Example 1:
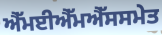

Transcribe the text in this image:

ਐੱਮਈਐੱਮਐੱਸਸਮੇਤ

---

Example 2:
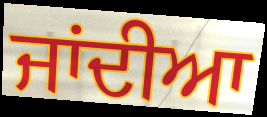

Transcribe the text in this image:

ਜਾਂਦੀਆ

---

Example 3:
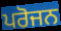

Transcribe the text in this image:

ਪਰੋਜਨ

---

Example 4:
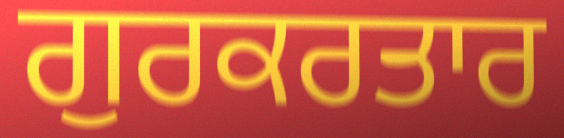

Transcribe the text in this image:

ਗੁਰਕਰਤਾਰ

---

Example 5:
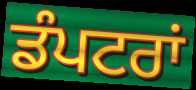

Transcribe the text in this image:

ਡੰਪਟਰਾਂ